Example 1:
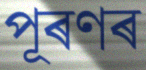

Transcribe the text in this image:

পূৰণৰ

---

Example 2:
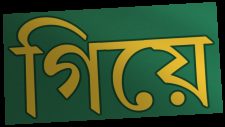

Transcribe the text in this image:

গিয়ে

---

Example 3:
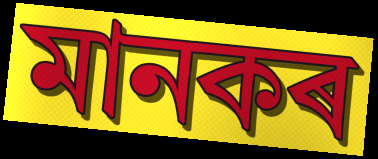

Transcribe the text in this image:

মানকৰ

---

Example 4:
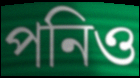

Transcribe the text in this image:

পনিও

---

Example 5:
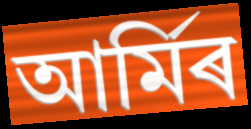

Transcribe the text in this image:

আৰ্মিৰ